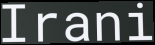
Irani